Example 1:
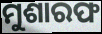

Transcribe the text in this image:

ମୁଶାରଫ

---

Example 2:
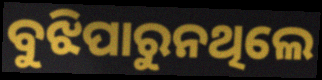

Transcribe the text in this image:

ବୁଝିପାରୁନଥିଲେ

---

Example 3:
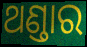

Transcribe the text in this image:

ଥଣ୍ଡାର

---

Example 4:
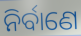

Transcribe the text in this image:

ନିର୍ବାଣେ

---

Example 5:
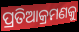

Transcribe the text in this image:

ପ୍ରତିଆକ୍ରମଣକୁ